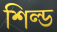
শিল্ড